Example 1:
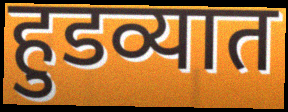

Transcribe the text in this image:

हुडव्यात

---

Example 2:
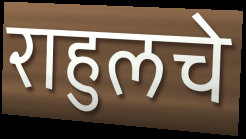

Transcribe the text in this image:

राहुलचे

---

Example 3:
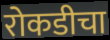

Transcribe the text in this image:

रोकडीचा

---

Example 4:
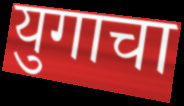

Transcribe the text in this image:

युगाचा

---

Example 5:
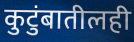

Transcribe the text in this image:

कुटुंबातीलही